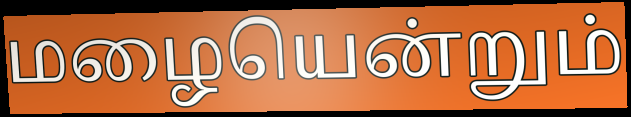
மழையென்றும்